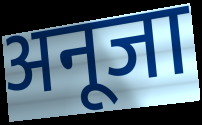
अनूजा